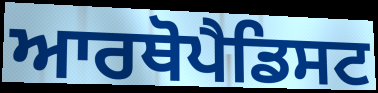
ਆਰਥੋਪੈਡਿਸਟ